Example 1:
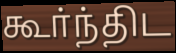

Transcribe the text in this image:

கூர்ந்திட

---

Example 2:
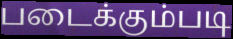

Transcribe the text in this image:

படைக்கும்படி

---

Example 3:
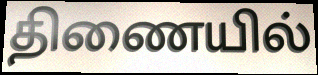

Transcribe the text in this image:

திணையில்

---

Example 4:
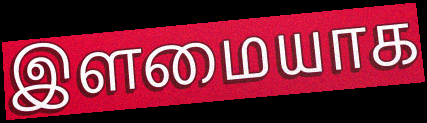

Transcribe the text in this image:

இளமையாக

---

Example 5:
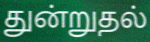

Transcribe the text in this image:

துன்றுதல்